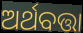
ଅର୍ଥବତ୍ତା